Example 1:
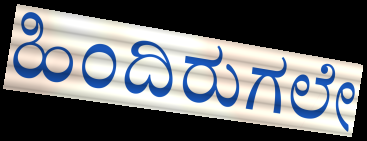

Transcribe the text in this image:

ಹಿಂದಿರುಗಲೇ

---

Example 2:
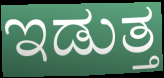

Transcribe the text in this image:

ಇಡುತ್ತ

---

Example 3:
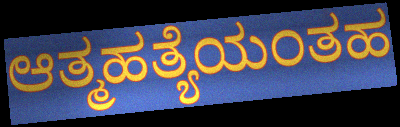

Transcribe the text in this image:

ಆತ್ಮಹತ್ಯೆಯಂತಹ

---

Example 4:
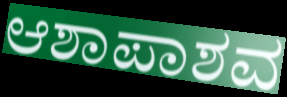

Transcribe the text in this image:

ಆಶಾಪಾಶವ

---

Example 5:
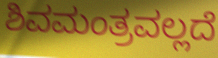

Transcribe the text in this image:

ಶಿವಮಂತ್ರವಲ್ಲದೆ